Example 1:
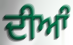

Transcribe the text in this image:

ਦੀਆੰ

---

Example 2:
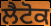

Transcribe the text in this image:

ਲੈਟੋਕ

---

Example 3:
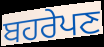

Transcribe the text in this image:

ਬਹਰੇਪਣ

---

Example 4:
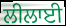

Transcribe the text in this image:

ਲੀਲਾਈ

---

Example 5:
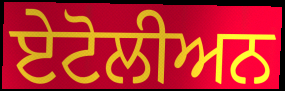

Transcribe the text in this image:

ਏਟੋਲੀਅਨ